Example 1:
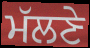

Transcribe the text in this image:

ਮੱਲਣੇ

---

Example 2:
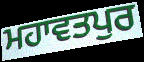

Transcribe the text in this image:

ਮਹਾਵਤਪੁਰ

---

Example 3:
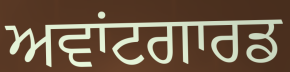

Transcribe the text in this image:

ਅਵਾਂਟਗਾਰਡ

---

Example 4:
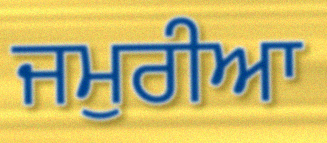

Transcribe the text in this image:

ਜਮੁਰੀਆ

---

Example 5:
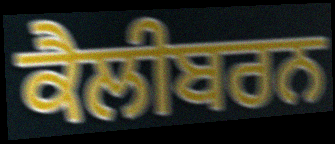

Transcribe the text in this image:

ਕੈਲੀਬਰਨ